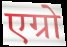
एग्रो